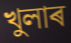
খুলাৰ